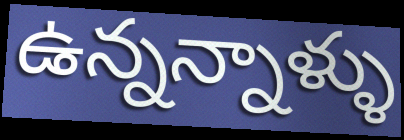
ఉన్నన్నాళ్ళు